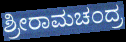
ಶ್ರೀರಾಮಚಂದ್ರ